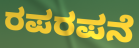
ರಪರಪನೆ